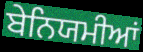
ਬੇਨਿਯਮੀਆਂ